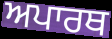
ਅਪਾਰਥ